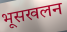
भूसखलन